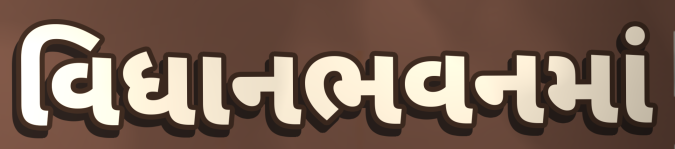
વિધાનભવનમાં